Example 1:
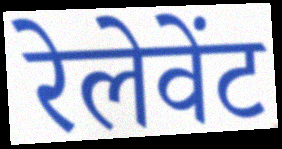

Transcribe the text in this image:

रेलेवेंट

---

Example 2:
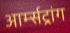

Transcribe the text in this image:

आर्म्सट्रांग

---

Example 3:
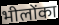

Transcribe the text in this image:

भीलोंका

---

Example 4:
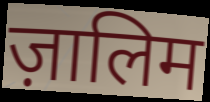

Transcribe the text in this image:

ज़ालिम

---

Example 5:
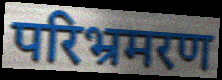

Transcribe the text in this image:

परिभ्रमरण